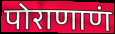
पोराणाणं